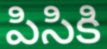
పిసికి